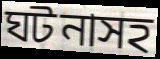
ঘটনাসহ